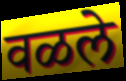
वळले